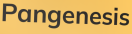
Pangenesis